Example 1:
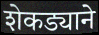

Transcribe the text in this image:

शेकड्याने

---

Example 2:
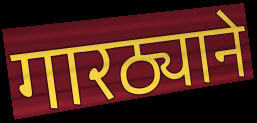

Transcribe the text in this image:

गारठ्याने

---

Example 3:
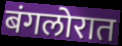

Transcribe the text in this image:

बंगलोरात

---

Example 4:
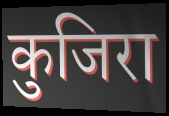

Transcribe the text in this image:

कुजिरा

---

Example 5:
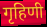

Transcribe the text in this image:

गृहिणी